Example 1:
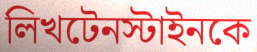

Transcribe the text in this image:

লিখটেনস্টাইনকে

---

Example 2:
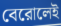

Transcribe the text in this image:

বেরোলেই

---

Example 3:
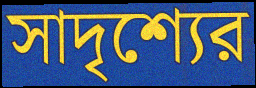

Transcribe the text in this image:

সাদৃশ্যের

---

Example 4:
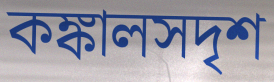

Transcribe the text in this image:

কঙ্কালসদৃশ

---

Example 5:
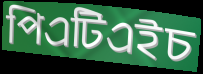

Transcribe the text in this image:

পিএটিএইচ